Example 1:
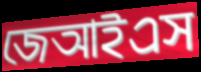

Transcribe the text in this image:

জেআইএস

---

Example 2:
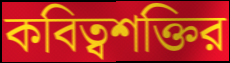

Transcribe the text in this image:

কবিত্বশক্তির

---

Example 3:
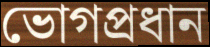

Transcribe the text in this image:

ভোগপ্রধান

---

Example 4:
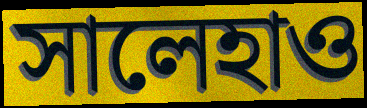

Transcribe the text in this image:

সালেহাও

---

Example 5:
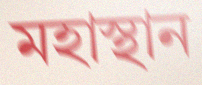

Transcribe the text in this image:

মহাস্থান